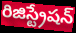
రిజిస్ట్రేషన్